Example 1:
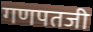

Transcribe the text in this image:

गणपतजी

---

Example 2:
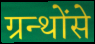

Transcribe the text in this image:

ग्रन्थोंसे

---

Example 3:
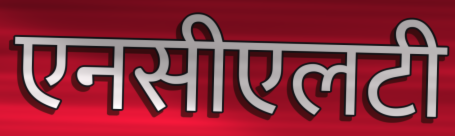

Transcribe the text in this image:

एनसीएलटी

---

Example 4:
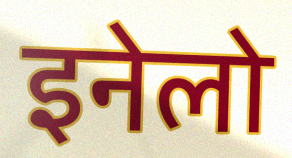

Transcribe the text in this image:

इनेलो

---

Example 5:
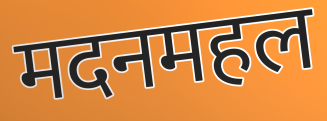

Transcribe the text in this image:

मदनमहल